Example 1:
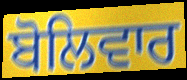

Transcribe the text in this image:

ਬੋਲਿਵਾਰ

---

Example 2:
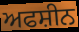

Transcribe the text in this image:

ਅਫਸ਼ੀਨ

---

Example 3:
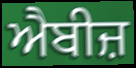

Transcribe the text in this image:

ਐਬੀਜ਼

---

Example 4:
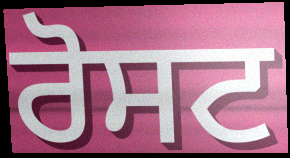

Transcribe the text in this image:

ਰੋਸਟ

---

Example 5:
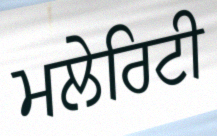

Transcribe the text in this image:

ਮਲੇਰਿਟੀ